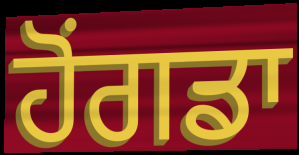
ਹੋਂਗਡਾ